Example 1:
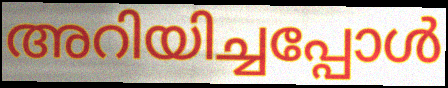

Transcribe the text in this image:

അറിയിച്ചപ്പോൾ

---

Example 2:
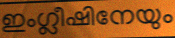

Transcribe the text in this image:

ഇംഗ്ലീഷിനേയും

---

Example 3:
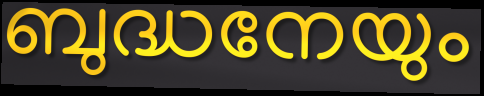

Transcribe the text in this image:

ബുദ്ധനേയും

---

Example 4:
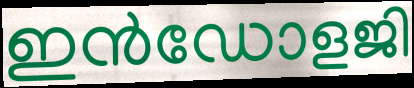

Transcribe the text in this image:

ഇൻഡോളജി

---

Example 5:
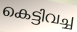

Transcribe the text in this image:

കെട്ടിവച്ച